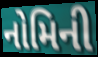
નોમિની